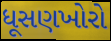
ધૂસણખોરો